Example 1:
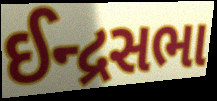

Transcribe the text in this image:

ઈન્દ્રસભા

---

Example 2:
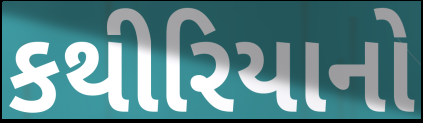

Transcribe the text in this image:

કથીરિયાનો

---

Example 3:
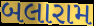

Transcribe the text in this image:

બલારામ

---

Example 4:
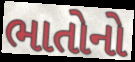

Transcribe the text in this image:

ભાતોનો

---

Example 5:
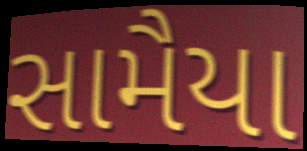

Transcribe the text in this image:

સામૈયા